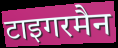
टाइगरमैन